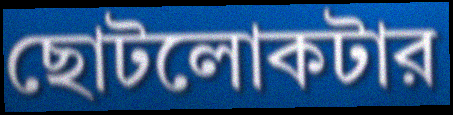
ছোটলোকটার